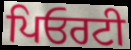
ਪਿਓਰਟੀ